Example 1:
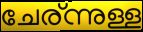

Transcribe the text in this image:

ചേര്ന്നുള്ള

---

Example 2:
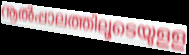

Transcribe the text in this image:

നൂൽപ്പാലത്തിലൂടെയുളള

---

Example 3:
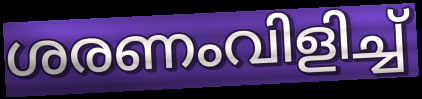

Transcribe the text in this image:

ശരണംവിളിച്ച്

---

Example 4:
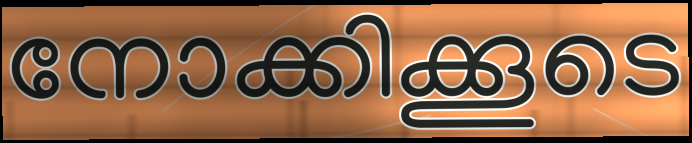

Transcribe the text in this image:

നോക്കിക്കൂടെ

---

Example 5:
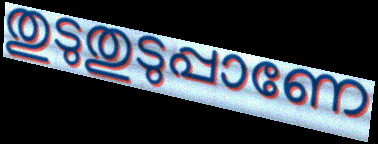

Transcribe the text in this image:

തുടുതുടുപ്പാണേ